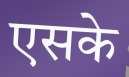
एसके